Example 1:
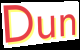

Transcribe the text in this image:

Dun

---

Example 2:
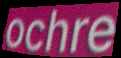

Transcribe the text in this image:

ochre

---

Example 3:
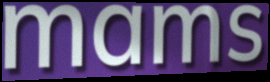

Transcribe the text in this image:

mams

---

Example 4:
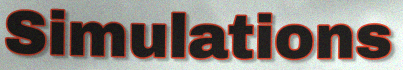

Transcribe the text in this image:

Simulations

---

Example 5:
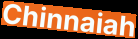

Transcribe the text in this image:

Chinnaiah